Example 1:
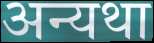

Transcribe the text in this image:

अन्यथा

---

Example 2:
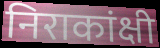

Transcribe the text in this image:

निराकांक्षी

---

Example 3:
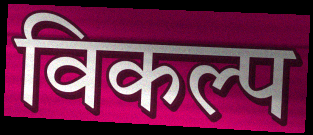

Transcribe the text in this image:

विकल्प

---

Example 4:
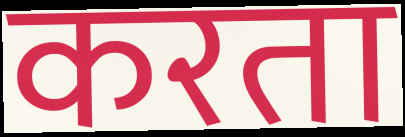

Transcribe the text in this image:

करता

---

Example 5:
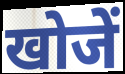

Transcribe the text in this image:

खोजें